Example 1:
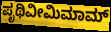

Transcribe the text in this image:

ಪೃಥಿವೀಮಿಮಾಮ್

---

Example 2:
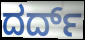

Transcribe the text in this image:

ದರ್ದ್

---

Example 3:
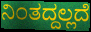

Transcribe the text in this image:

ನಿಂತದ್ದಲ್ಲದೆ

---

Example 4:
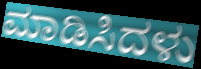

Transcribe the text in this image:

ಮಾಡಿಸಿದಳು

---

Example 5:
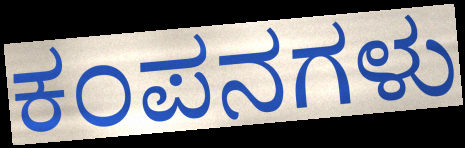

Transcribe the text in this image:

ಕಂಪನಗಳು